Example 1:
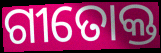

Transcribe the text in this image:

ଗୀତୋକ୍ତ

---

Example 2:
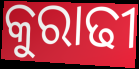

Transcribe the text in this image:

କୁରାଢୀ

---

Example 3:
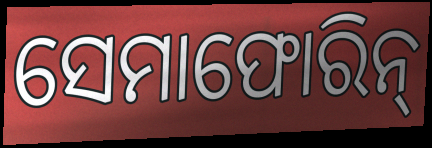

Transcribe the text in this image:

ସେମାଫୋରିନ୍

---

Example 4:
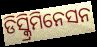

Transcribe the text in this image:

ଡିସ୍କ୍ରିମିନେସନ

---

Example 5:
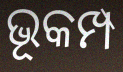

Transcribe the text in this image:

ଭୂକମ୍ପ